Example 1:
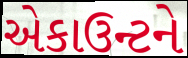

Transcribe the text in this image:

એકાઉન્ટને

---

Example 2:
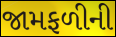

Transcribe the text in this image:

જામફળીની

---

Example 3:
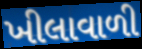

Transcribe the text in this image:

ખીલાવાળી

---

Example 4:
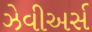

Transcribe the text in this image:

ઝેવીઅર્સ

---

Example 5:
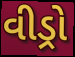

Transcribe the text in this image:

વીડ્રો